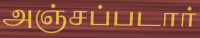
அஞ்சப்படார்